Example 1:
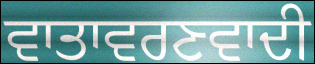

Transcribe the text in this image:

ਵਾਤਾਵਰਣਵਾਦੀ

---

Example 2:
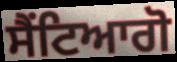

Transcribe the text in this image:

ਸੈਂਟਿਆਗੋ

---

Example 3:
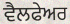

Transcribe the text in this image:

ਵੈਲਫੇਅਰ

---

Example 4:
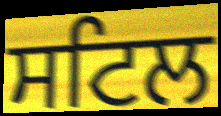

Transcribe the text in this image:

ਸਟਿਲ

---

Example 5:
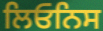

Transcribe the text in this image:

ਲਿਓਨਿਸ